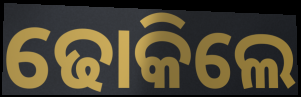
ଢୋକିଲେ